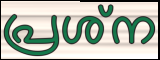
പ്രശ്‌ന